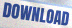
DOWNLOAD